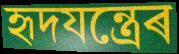
হৃদযন্ত্ৰেৰ